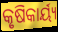
କୃଷିକାର୍ୟ୍ୟ